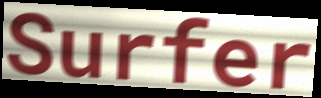
Surfer